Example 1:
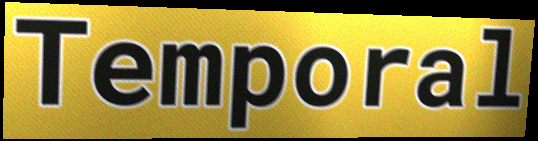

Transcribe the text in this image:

Temporal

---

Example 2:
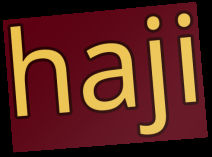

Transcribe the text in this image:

haji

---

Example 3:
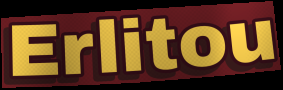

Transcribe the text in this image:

Erlitou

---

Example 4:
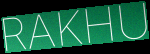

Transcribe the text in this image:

RAKHU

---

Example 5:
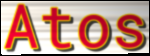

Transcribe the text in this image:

Atos